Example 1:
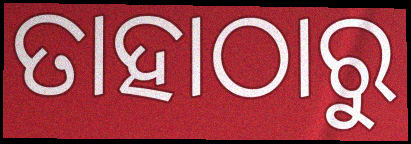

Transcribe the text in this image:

ତାହାଠାରୁ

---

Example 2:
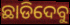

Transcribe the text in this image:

ଛାଡିଦେବୁ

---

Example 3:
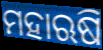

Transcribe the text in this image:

ମହାଋଷି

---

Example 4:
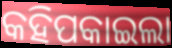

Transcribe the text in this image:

କହିପକାଇଲା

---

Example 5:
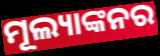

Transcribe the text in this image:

ମୂଲ୍ୟାଙ୍କନର